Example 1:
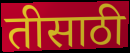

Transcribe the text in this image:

तीसाठी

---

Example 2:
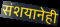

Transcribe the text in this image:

संशयानेही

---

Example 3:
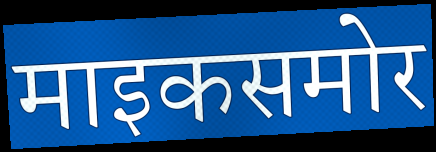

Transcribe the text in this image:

माइकसमोर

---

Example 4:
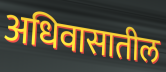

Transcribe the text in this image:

अधिवासातील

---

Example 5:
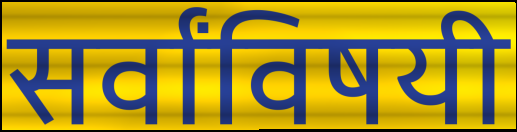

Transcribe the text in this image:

सर्वांविषयी